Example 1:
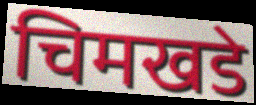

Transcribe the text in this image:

चिमखडे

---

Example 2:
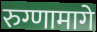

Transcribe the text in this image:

रुग्णामागे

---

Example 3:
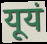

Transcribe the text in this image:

यूयं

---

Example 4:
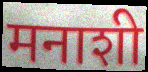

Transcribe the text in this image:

मनाशी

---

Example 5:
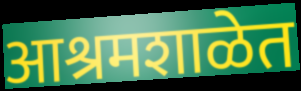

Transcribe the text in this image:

आश्रमशाळेत